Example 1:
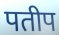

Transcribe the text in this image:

पतीप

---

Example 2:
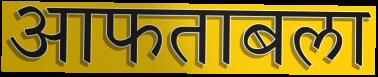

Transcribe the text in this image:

आफताबला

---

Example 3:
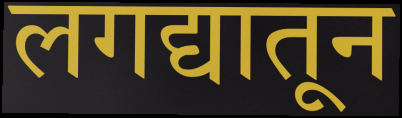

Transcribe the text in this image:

लगद्यातून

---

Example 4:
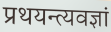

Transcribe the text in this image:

प्रथयन्त्यवज्ञां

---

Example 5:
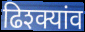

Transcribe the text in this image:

ढिश्क्यांव